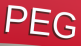
PEG